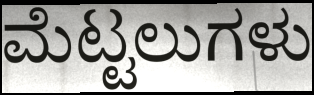
ಮೆಟ್ಟಲುಗಳು